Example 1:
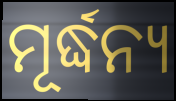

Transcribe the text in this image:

ମୂର୍ଦ୍ଧନ୍ୟ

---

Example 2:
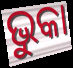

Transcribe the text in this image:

ଭୁକା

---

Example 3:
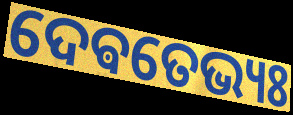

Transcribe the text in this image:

ଦେଵତେଭ୍ୟଃ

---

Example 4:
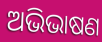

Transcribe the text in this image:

ଅଭିଭାଷଣ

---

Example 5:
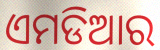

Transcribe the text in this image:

ଏମଡିଆର